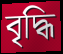
বৃদ্ধি